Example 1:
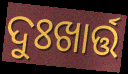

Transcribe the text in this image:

ଦୁଃଖାର୍ତ୍ତ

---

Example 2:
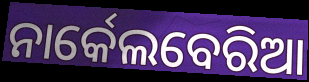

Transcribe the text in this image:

ନାର୍କେଲବେରିଆ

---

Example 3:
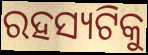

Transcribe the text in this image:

ରହସ୍ୟଟିକୁ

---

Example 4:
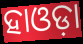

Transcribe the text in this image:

ହାଓଡ଼ା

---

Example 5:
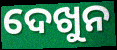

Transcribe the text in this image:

ଦେଖୁନ